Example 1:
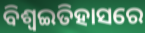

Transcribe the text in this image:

ବିଶ୍ଵଇତିହାସରେ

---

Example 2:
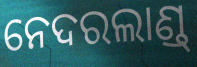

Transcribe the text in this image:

ନେଦରଲାଣ୍ଡ୍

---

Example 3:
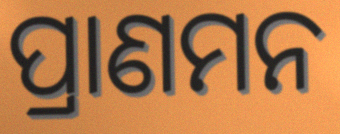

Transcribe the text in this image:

ପ୍ରାଣମନ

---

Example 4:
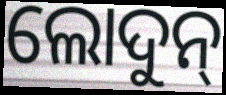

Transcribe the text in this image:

ଲୋଦୁନ୍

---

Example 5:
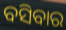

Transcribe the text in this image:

ବସିବାର